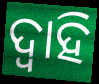
ଦ୍ଵାହି